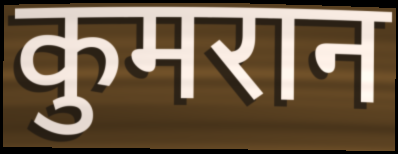
कुमरान